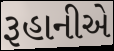
રૂહાનીએ